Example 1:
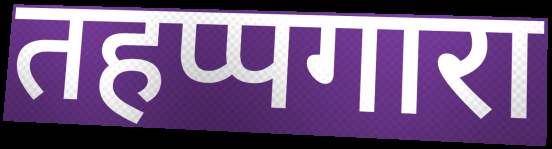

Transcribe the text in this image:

तहप्पगारा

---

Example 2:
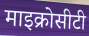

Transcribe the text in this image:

माइक्रोसीटी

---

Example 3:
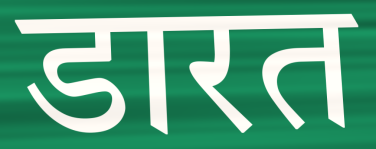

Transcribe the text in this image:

डारत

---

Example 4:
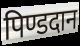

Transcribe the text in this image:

पिण्डदान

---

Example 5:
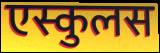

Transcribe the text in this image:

एस्कुलस